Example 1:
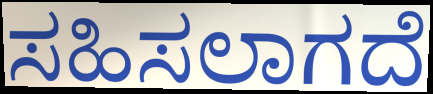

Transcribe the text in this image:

ಸಹಿಸಲಾಗದೆ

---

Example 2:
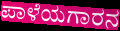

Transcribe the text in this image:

ಪಾಳೆಯಗಾರನ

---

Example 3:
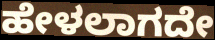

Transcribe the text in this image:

ಹೇಳಲಾಗದೇ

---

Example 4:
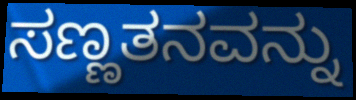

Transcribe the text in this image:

ಸಣ್ಣತನವನ್ನು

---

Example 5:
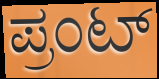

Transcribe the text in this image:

ಪ್ರಂಟ್